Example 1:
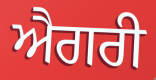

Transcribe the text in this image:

ਐਗਰੀ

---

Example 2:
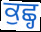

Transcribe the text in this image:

ਕੁਛ੍ਹ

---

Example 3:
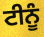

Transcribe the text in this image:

ਟੀਨੂੰ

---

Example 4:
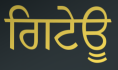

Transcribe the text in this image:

ਗਿਟੇਊ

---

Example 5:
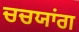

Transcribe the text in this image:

ਚਚਯਾਂਗ